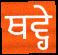
ਥਵ੍ਹੇ